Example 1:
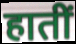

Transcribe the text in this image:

हातीं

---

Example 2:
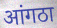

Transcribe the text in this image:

आंगठा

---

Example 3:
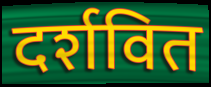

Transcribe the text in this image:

दर्शवित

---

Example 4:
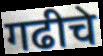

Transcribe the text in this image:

गढीचे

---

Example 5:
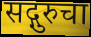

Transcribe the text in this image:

सद्गुरुचा